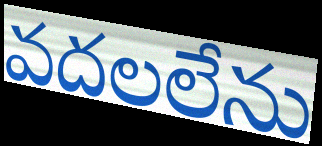
వదలలేను